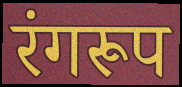
रंगरूप